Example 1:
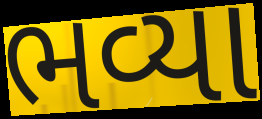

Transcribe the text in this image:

ભવ્યા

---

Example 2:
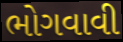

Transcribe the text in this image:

ભોગવાવી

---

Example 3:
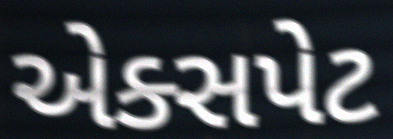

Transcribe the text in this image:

એક્સપેટ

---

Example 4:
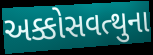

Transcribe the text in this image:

અક્કોસવત્થુના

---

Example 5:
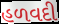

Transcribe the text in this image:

હળવદી